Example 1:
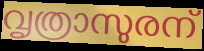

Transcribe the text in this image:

വൃത്രാസുരന്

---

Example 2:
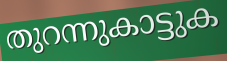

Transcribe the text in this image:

തുറന്നുകാട്ടുക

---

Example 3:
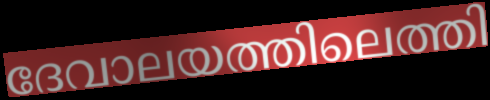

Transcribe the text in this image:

ദേവാലയത്തിലെത്തി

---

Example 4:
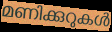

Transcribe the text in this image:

മണിക്കുറുകൾ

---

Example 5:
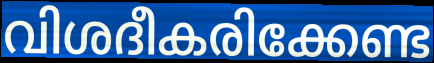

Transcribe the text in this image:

വിശദീകരിക്കേണ്ട